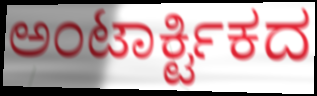
ಅಂಟಾರ್ಕ್ಟಿಕದ